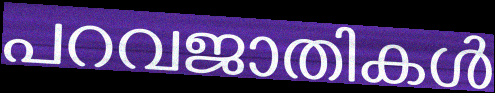
പറവജാതികൾ